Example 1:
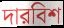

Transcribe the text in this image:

দারবিশ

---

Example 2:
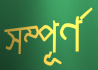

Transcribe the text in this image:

সম্পূর্ণ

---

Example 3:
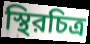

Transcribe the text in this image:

স্থিরচিত্র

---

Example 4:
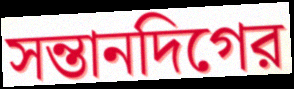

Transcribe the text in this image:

সন্তানদিগের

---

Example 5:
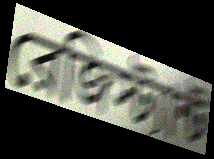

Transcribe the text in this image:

রেজিস্ট্যান্ট